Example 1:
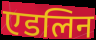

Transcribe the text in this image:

एडलिन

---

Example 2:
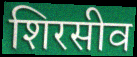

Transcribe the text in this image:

शिरसीव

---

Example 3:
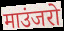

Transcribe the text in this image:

माउंजरो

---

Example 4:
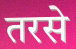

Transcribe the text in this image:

तरसे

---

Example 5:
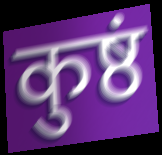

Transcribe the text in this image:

कुष्ठं